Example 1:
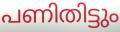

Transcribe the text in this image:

പണിതിട്ടും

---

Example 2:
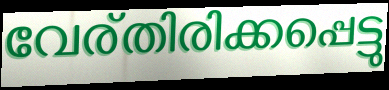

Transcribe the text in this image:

വേര്തിരിക്കപ്പെട്ടു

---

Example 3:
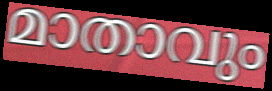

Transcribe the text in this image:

മാതാവും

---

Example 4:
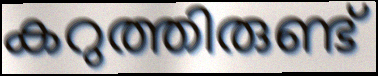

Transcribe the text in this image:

കറുത്തിരുണ്ട്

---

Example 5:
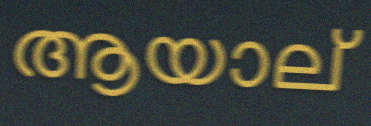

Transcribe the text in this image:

ആയാല്